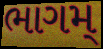
ભાગમ્